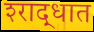
श्राद्धात